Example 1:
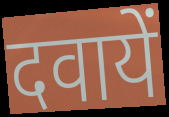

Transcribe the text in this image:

दवायें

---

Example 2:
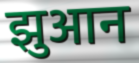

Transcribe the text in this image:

झुआन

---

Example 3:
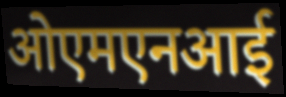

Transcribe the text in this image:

ओएमएनआई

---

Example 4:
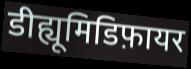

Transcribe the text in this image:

डीह्यूमिडिफ़ायर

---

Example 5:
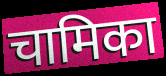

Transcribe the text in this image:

चामिका